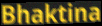
Bhaktina